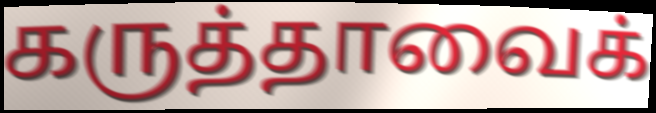
கருத்தாவைக்